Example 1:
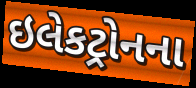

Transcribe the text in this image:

ઇલેકટ્રોનના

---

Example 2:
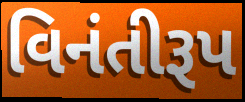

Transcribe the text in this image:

વિનંતીરૂપ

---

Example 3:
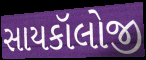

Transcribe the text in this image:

સાયકૉલોજી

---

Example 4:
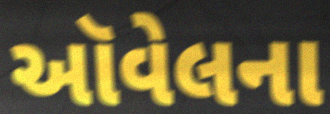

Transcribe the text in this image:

ઑવેલના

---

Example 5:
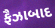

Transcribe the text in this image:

ફૈઝાબાદ